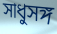
সাধুসঙ্গ